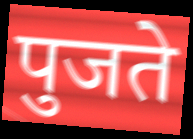
पुजते